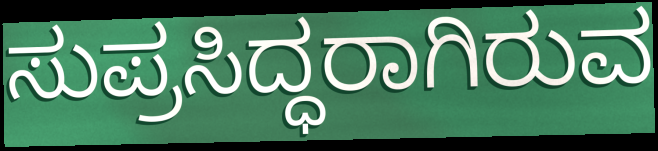
ಸುಪ್ರಸಿದ್ಧರಾಗಿರುವ